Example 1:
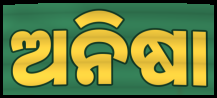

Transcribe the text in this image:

ଅନିଷା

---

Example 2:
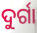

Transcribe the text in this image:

ଦୁର୍ଗା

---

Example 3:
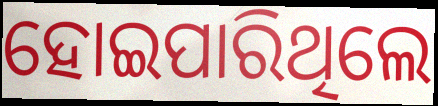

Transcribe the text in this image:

ହୋଇପାରିଥିଲେ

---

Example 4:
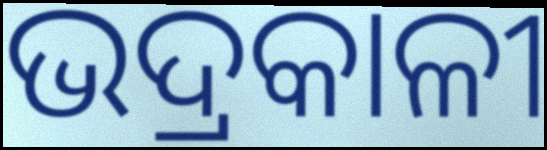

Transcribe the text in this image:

ଭଦ୍ରକାଳୀ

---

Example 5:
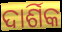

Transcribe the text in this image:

ଦାର୍ଶିକ